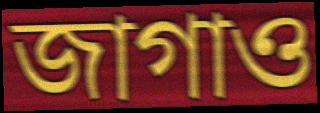
জাগাও